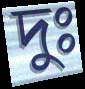
দুঃ